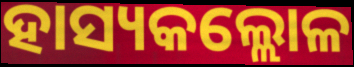
ହାସ୍ୟକଲ୍ଲୋଳ